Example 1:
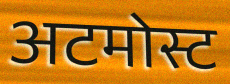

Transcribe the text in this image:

अटमोस्ट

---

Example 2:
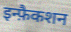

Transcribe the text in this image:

इन्फ़ैकशन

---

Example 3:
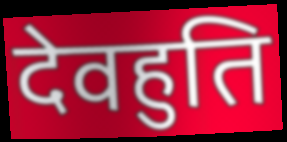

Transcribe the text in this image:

देवहुति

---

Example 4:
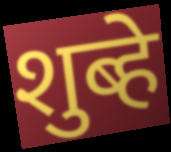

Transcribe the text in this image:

शुब्हे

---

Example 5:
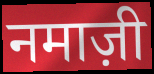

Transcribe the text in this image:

नमाज़ी